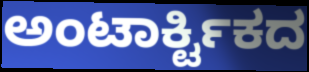
ಅಂಟಾರ್ಕ್ಟಿಕದ